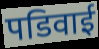
पडिवाई